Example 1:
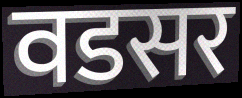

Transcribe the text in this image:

वडसर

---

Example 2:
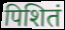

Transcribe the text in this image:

पिशितं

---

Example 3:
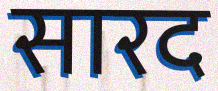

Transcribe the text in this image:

सारद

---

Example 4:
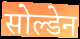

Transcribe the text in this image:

सोल्डेन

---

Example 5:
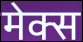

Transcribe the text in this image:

मेक्स